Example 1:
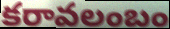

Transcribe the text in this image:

కరావలంబం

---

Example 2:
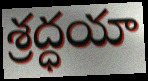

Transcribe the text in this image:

శ్రద్ధయా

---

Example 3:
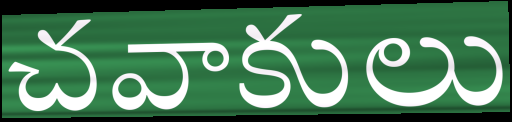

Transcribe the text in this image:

చవాకులు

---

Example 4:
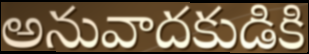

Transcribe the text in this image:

అనువాదకుడికి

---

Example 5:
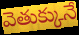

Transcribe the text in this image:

వెతుక్కునే